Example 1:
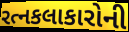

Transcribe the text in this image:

રત્નકલાકારોની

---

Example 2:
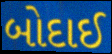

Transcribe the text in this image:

બોદાઈ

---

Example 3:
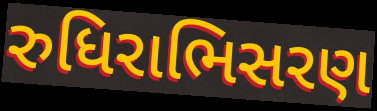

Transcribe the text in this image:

રુધિરાભિસરણ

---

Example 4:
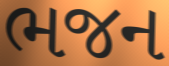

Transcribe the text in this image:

ભજન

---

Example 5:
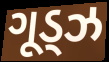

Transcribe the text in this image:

ગૂડ્ઝ